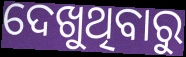
ଦେଖୁଥିବାରୁ